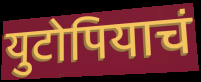
युटोपियाचं